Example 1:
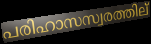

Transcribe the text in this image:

പരിഹാസസ്വരത്തില്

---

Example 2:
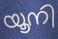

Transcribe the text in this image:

യൂനി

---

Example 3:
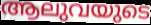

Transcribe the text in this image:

ആലുവയുടെ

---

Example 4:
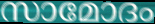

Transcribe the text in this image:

സാമോദം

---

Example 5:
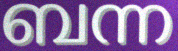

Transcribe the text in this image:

ബന്ന